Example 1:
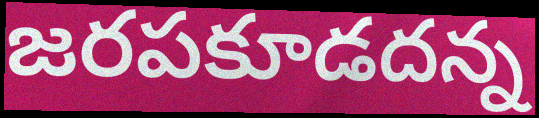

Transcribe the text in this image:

జరపకూడదన్న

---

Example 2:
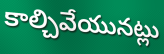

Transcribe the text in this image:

కాల్చివేయునట్లు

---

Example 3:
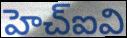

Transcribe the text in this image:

హెచ్ఐవి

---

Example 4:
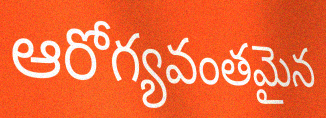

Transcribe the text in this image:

ఆరోగ్యవంతమైన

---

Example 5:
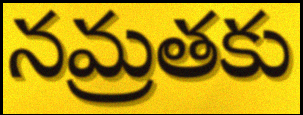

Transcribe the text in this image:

నమ్రతకు